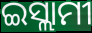
ଇସ୍ଲାମୀ